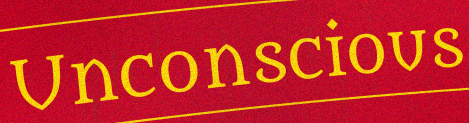
Unconscious